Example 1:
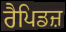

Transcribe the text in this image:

ਰੈਪਿਡਜ਼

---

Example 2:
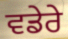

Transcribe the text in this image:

ਵਡੇਰੇ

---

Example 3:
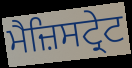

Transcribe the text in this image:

ਮੈਜ਼ਿਸਟ੍ਰੇਟ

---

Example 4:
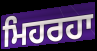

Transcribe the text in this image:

ਮਿਹਰਹਾ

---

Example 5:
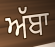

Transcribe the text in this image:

ਅੱਬਾ